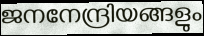
ജനനേന്ദ്രിയങ്ങളും